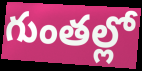
గుంతల్లో